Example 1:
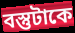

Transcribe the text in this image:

বস্তুটাকে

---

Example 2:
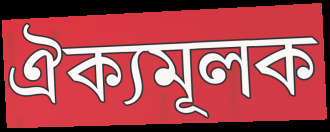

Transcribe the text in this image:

ঐক্যমূলক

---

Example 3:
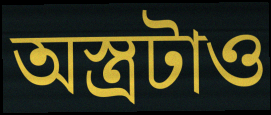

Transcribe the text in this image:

অস্ত্রটাও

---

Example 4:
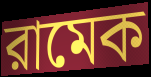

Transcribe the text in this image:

রামেক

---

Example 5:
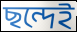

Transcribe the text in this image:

ছন্দেই